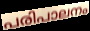
പരിപാലനം